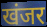
खंजर